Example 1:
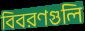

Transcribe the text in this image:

বিবরণগুলি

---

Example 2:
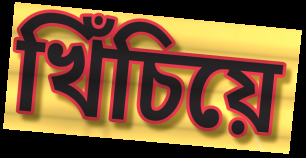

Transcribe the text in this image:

খিঁচিয়ে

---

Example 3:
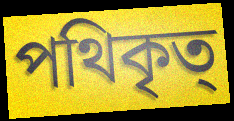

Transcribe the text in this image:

পথিকৃত্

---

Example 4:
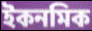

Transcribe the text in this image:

ইকনমিক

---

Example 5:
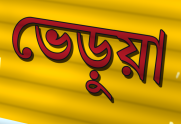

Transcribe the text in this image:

ভেড়ুয়া